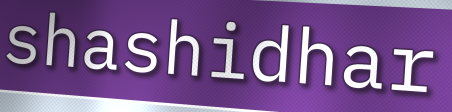
shashidhar